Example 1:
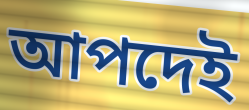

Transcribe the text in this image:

আপদেই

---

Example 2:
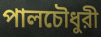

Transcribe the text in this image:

পালচৌধুরী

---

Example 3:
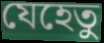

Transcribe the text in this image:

যেহেতু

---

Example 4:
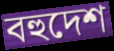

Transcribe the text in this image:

বহুদেশ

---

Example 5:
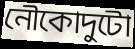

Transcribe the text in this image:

নৌকোদুটো